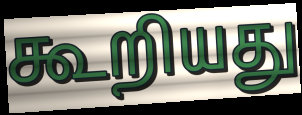
கூறியது